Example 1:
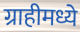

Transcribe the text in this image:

ग्राहीमध्ये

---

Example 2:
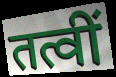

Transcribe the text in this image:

तत्वीं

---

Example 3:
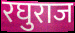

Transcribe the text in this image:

रघुराज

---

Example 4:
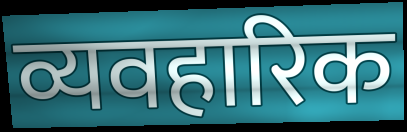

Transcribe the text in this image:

व्यवहारिक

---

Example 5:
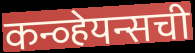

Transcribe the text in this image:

कन्व्हेयन्सची